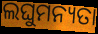
ଲଘୁମନ୍ୟତା